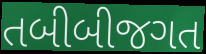
તબીબીજગત